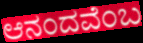
ಆನಂದವೆಂಬ